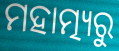
ମହାତ୍ମ୍ୟରୁ